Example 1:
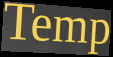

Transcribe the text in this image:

Temp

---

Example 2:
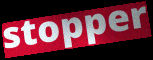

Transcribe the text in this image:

stopper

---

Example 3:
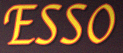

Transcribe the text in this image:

ESSO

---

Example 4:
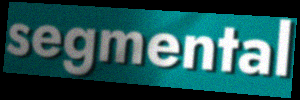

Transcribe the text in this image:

segmental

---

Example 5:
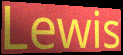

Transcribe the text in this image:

Lewis